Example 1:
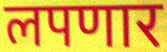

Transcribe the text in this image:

लपणार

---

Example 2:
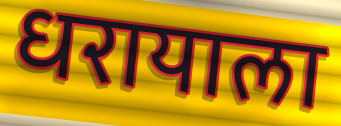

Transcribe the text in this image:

धरायाला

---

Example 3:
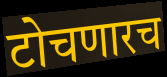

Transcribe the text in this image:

टोचणारच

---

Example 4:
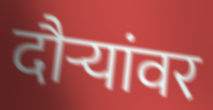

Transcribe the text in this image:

दौऱ्यांवर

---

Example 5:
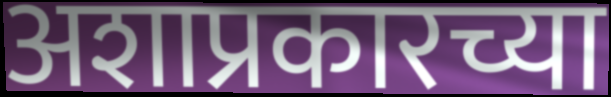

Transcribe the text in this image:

अशाप्रकारच्या